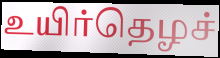
உயிர்தெழச்